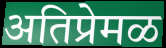
अतिप्रेमळ